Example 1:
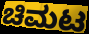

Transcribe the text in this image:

ಚಿಮಟ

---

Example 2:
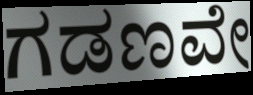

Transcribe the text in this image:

ಗಡಣವೇ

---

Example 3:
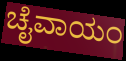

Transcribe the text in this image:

ಚೈವಾಯಂ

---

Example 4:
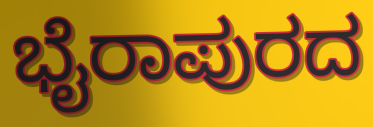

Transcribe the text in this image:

ಭೈರಾಪುರದ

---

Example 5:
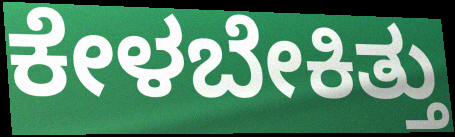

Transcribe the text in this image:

ಕೇಳಬೇಕಿತ್ತು